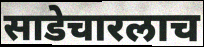
साडेचारलाच